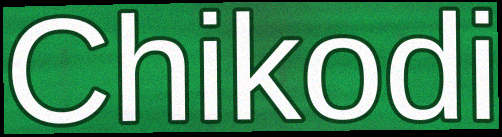
Chikodi